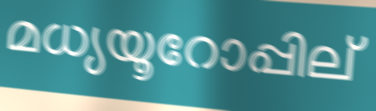
മധ്യയൂറോപ്പില്